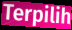
Terpilih